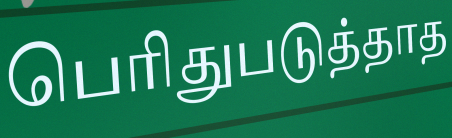
பெரிதுபடுத்தாத